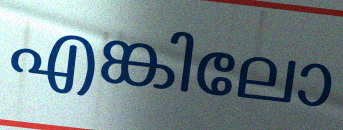
എങ്കിലോ